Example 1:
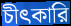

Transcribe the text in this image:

চীৎকারি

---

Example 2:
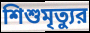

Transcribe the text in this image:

শিশুমৃত্যুর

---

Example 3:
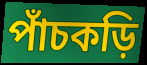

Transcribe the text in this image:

পাঁচকড়ি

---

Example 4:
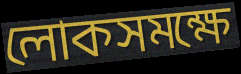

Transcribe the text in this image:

লোকসমক্ষে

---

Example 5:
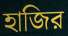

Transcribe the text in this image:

হাজির